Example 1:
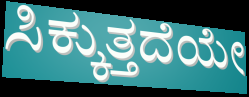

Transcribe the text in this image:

ಸಿಕ್ಕುತ್ತದೆಯೇ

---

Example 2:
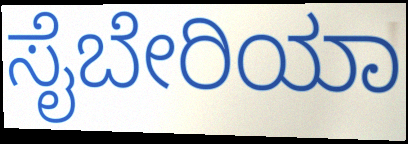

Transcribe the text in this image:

ಸೈಬೇರಿಯಾ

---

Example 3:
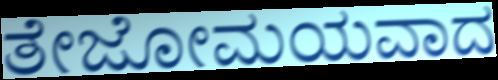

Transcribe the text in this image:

ತೇಜೋಮಯವಾದ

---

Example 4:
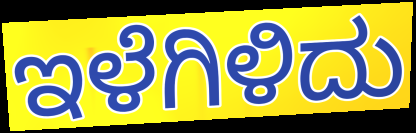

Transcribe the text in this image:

ಇಳೆಗಿಳಿದು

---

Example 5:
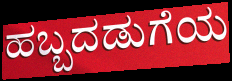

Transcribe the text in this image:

ಹಬ್ಬದಡುಗೆಯ